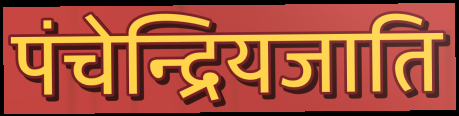
पंचेन्द्रियजाति